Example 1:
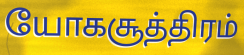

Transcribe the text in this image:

யோகசூத்திரம்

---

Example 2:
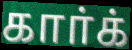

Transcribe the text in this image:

கார்க்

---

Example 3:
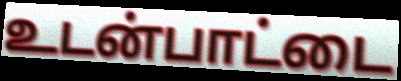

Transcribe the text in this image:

உடன்பாட்டை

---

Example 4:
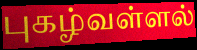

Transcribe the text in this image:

புகழ்வள்ளல்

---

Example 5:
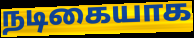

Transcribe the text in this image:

நடிகையாக